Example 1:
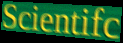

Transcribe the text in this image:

Scientifc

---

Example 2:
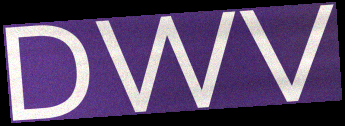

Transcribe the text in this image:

DWV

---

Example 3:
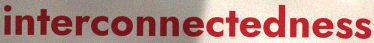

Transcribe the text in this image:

interconnectedness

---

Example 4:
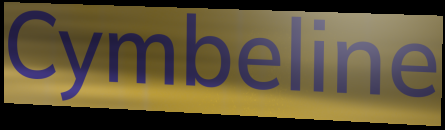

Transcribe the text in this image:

Cymbeline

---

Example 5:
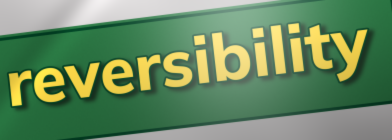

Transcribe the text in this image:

reversibility